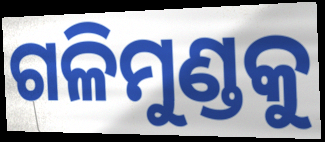
ଗଳିମୁଣ୍ଡକୁ